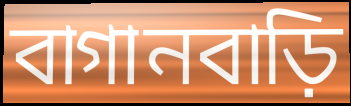
বাগানবাড়ি